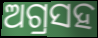
ଅଗ୍ରସହ